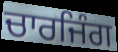
ਚਾਰਜਿੰਗ